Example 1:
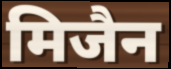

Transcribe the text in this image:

मिजैन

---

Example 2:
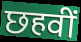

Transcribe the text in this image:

छहवीं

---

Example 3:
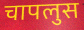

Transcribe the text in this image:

चापलुस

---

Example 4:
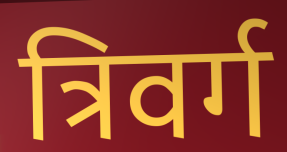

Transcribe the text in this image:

त्रिवर्ग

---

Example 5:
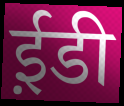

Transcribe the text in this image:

ई़डी